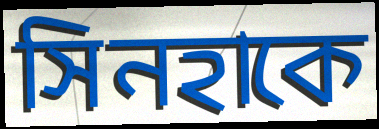
সিনহাকে